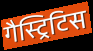
गैस्ट्रिटिस